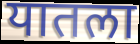
यातला